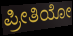
ಪ್ರೀತಿಯೋ